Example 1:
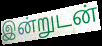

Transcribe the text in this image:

இன்றுடன்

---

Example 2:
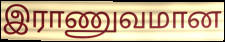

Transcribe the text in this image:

இராணுவமான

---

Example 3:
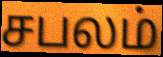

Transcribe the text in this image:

சபலம்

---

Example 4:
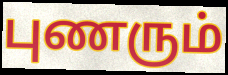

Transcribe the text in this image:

புணரும்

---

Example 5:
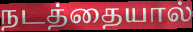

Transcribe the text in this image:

நடத்தையால்